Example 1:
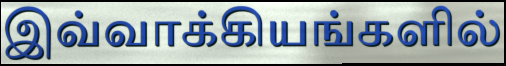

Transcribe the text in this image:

இவ்வாக்கியங்களில்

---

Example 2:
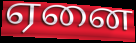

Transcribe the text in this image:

ஏனை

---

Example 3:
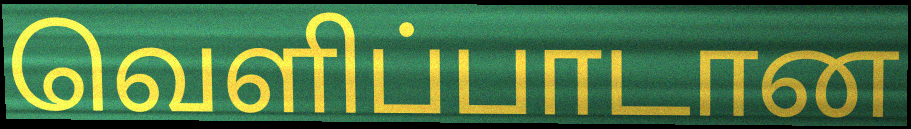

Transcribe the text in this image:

வெளிப்பாடான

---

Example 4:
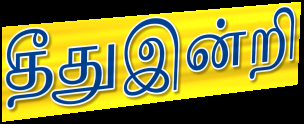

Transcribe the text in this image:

தீதுஇன்றி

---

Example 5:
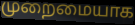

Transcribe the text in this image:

முறைமையாக